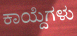
ಕಾಯ್ದೆಗಳು